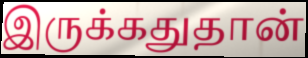
இருக்கதுதான்